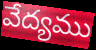
వేద్యము